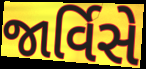
જાર્વિસે